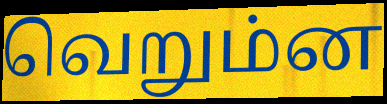
வெறும்ன